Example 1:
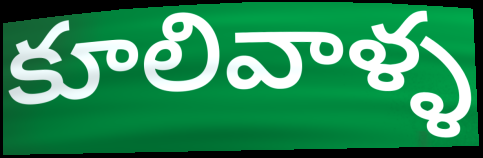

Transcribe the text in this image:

కూలివాళ్ళ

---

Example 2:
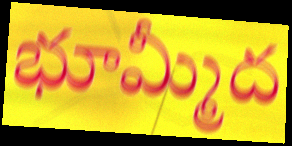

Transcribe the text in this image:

భూమ్మీద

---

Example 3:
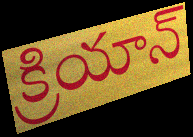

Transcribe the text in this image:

క్రియాన్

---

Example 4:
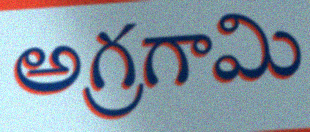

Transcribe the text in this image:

అగ్రగామి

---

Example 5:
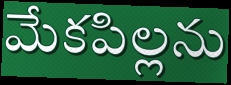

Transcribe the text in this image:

మేకపిల్లను